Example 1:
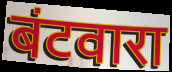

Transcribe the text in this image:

बंटवारा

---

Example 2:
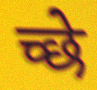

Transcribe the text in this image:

च्छे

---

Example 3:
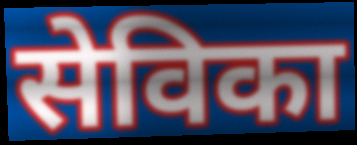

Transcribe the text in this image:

सेविका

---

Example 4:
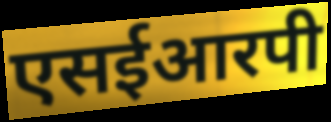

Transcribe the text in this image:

एसईआरपी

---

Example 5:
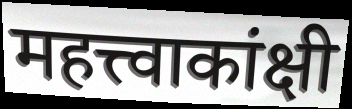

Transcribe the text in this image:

महत्त्वाकांक्षी